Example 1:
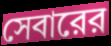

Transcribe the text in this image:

সেবারের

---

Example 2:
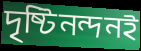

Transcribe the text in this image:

দৃষ্টিনন্দনই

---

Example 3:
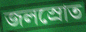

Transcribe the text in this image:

জলস্রোত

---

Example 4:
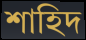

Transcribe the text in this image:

শাহিদ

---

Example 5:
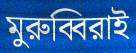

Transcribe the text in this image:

মুরুব্বিরাই